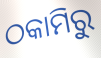
ଠକାମିରୁ